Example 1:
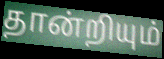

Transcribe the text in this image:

தான்றியும்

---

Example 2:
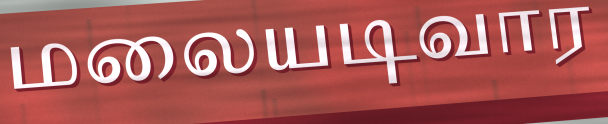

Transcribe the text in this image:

மலையடிவார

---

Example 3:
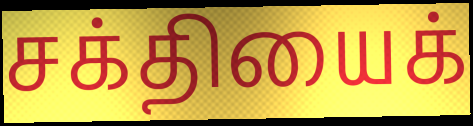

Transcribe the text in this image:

சக்தியைக்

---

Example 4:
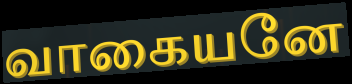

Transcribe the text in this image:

வாகையனே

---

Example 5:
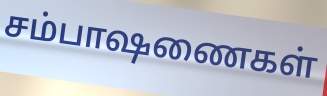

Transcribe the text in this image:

சம்பாஷணைகள்